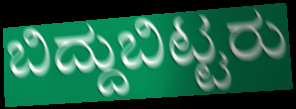
ಬಿದ್ದುಬಿಟ್ಟರು